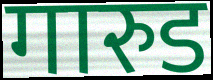
गारुड